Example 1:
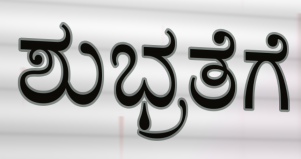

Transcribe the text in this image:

ಶುಭ್ರತೆಗೆ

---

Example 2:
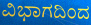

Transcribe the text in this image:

ವಿಭಾಗದಿಂದ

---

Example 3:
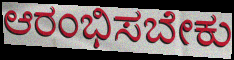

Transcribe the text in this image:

ಆರಂಭಿಸಬೇಕು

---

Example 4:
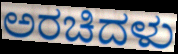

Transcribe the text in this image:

ಅರಚಿದಳು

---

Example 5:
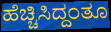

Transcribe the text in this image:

ಹೆಚ್ಚಿಸಿದ್ದಂತೂ